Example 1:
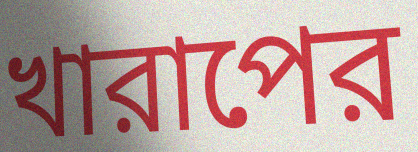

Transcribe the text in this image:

খারাপের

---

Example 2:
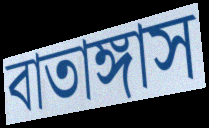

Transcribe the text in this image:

বাতাঙ্গাস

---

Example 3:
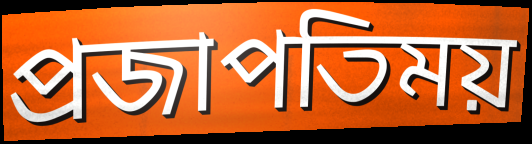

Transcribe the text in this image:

প্রজাপতিময়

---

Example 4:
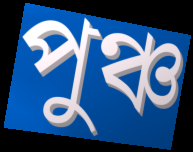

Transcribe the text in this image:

পুঞ্চ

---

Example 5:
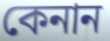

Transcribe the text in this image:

কেনান